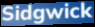
Sidgwick